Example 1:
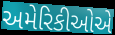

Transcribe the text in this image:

અમેરિકીઓએ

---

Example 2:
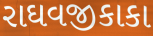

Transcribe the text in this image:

રાઘવજીકાકા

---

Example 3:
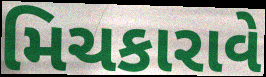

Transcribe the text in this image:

મિચકારાવે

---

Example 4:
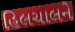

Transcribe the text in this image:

હિલચાલને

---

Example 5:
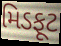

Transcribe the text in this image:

મિડફૂટ